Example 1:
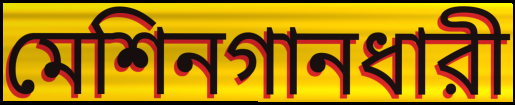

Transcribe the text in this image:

মেশিনগানধারী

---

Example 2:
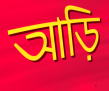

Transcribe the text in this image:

আড়ি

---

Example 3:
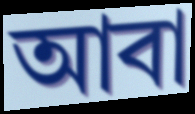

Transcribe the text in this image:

আবা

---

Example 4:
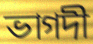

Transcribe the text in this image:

ভাগদী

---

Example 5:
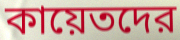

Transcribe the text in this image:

কায়েতদের